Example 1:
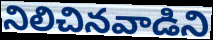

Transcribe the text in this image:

నిలిచినవాడిని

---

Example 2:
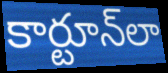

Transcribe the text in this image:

కార్టూన్‌లా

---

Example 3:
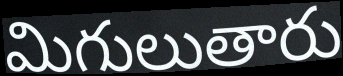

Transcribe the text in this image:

మిగులుతారు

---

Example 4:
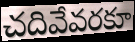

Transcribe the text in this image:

చదివేవరకూ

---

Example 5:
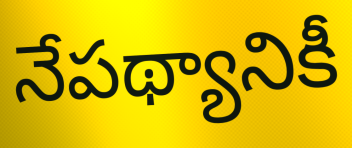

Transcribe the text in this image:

నేపథ్యానికీ